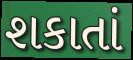
શકાતાં